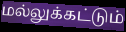
மல்லுக்கட்டும்